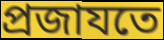
প্রজাযতে